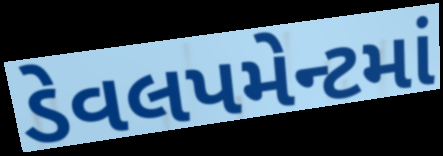
ડેવલપમેન્ટમાં